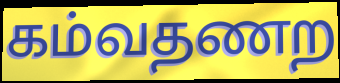
கம்வதணற